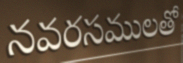
నవరసములతో